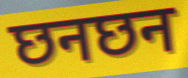
छनछन